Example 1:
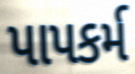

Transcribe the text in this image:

પાપકર્મ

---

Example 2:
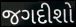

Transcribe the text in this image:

જગદીશો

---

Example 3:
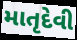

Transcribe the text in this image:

માતૃદેવી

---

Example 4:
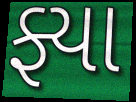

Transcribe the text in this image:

ફ્યા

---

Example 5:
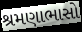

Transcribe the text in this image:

શ્રમણાભાસો